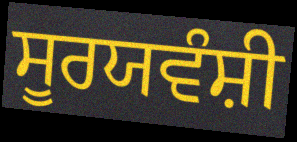
ਸੂਰਯਵੰਸ਼ੀ